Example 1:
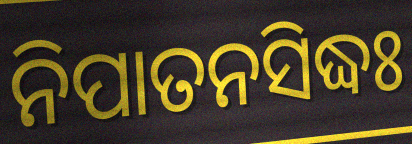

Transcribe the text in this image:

ନିପାତନସିଦ୍ଧଃ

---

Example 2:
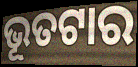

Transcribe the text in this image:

ଭୂତଟାର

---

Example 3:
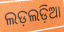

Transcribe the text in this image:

ଲଡ଼ଲଡ଼ିଆ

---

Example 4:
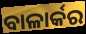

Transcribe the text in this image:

ବାଳାର୍କର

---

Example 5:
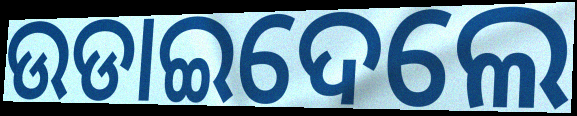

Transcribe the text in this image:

ଉଡାଇଦେଲେ